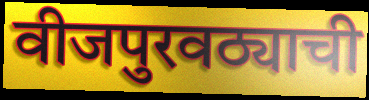
वीजपुरवठ्याची